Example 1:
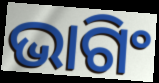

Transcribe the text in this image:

ଭାଗିଂ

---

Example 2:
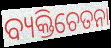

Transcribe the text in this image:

ବ୍ୟକ୍ତିଚେତନା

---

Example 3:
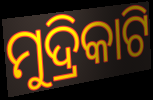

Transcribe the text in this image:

ମୁଦ୍ରିକାଟି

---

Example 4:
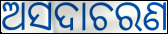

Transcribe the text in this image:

ଅସଦାଚରଣ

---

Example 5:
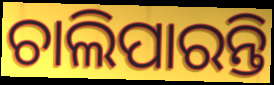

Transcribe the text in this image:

ଚାଲିପାରନ୍ତି